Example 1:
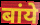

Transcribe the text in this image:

बांये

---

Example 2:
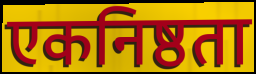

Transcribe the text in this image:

एकनिष्ठता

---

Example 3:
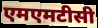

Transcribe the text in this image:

एमएमटीसी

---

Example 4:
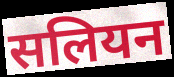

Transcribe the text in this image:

सलियन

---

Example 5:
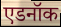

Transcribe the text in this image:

एडनॉक